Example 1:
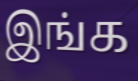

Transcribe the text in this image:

இங்க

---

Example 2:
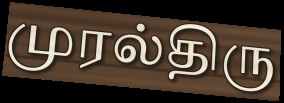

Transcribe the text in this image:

முரல்திரு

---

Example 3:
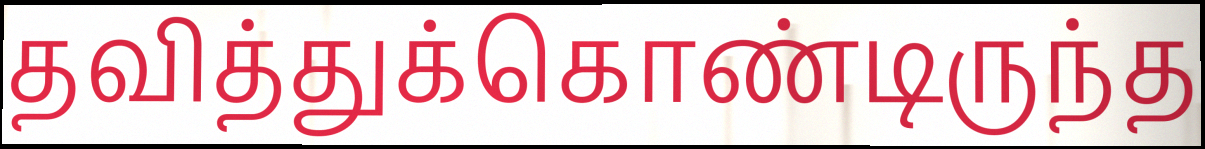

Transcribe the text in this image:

தவித்துக்கொண்டிருந்த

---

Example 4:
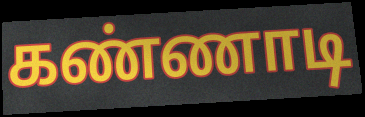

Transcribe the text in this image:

கண்ணாடி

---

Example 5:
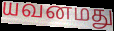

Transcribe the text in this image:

யவனமது